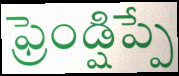
ఫ్రెండ్షిప్పే